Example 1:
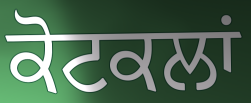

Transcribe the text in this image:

ਕੋਟਕਲਾਂ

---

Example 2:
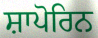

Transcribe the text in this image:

ਸ਼ਾਪੋਰਿਨ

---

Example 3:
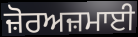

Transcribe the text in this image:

ਜ਼ੋਰਅਜ਼ਮਾਈ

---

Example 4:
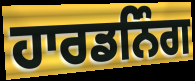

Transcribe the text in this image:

ਹਾਰਡਨਿੰਗ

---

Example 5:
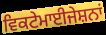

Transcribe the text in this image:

ਵਿਕਟੇਮਾਈਜੇਸ਼ਨਾਂ